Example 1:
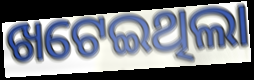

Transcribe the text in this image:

ଖଟେଇଥିଲା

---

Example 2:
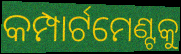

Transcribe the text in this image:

କମ୍ପାର୍ଟମେଣ୍ଟକୁ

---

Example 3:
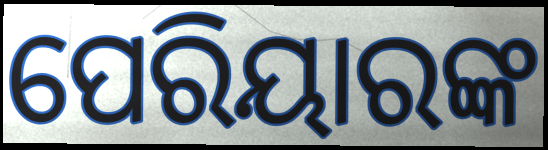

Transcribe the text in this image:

ପେରିୟାରଙ୍କ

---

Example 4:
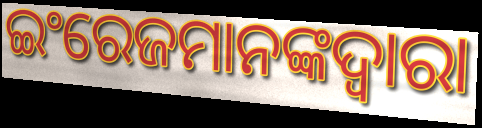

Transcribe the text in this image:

ଇଂରେଜମାନଙ୍କଦ୍ୱାରା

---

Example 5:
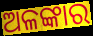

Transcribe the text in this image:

ଅଳଙ୍କାର